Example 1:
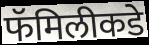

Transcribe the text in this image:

फॅमिलीकडे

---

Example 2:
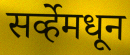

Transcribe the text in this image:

सर्व्हेमधून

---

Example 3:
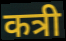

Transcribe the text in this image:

कत्री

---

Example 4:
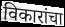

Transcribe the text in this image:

विकारांचा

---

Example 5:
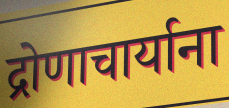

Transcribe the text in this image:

द्रोणाचार्याना